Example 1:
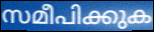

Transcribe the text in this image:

സമീപിക്കുക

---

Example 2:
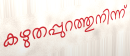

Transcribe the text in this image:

കഴുതപ്പുറത്തുനിന്ന്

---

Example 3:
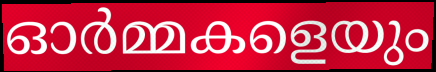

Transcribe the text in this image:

ഓർമ്മകളെയും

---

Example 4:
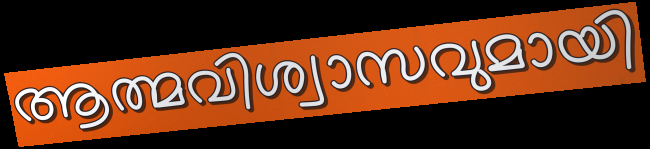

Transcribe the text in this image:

ആത്മവിശ്വാസവുമായി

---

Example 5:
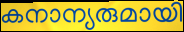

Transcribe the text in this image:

കനാന്യരുമായി